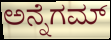
ಅನ್ನೆಗಮ್